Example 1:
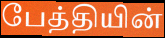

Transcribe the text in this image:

பேத்தியின்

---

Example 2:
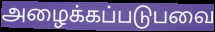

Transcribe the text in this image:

அழைக்கப்படுபவை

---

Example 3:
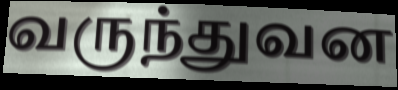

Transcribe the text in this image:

வருந்துவன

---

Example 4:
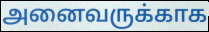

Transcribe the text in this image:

அனைவருக்காக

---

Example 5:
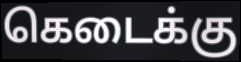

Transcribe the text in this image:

கெடைக்கு